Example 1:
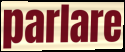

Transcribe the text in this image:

parlare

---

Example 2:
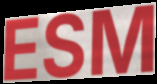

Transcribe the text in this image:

ESM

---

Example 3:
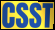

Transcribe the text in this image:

CSST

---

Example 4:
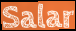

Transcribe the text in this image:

Salar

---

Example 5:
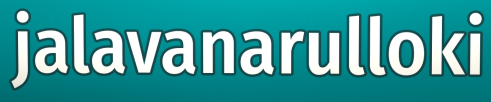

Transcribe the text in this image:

jalavanarulloki